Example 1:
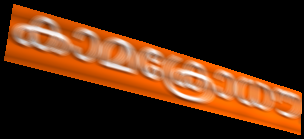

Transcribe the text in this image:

കാമക്രോധൗ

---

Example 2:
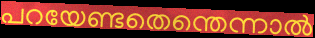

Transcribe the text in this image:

പറയേണ്ടതെന്തെന്നാൽ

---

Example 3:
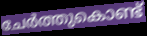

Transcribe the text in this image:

ചേർത്തുകൊണ്ട്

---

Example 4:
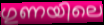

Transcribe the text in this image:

ഗുണയിലെ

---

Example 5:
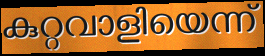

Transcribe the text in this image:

കുറ്റവാളിയെന്ന്